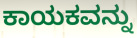
ಕಾಯಕವನ್ನು